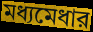
মধ্যমেধার